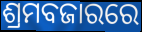
ଶ୍ରମବଜାରରେ